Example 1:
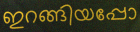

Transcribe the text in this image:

ഇറങ്ങിയപ്പോ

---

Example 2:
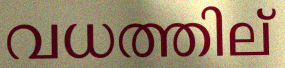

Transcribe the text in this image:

വധത്തില്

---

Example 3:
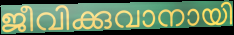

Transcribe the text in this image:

ജീവിക്കുവാനായി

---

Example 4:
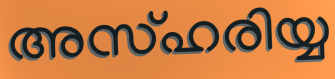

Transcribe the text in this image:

അസ്ഹരിയ്യ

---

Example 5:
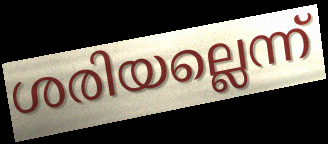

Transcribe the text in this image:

ശരിയല്ലെന്ന്